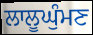
ਲਾਲੂਘੁੰਮਣ